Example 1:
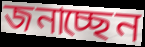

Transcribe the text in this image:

জনাচ্ছেন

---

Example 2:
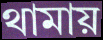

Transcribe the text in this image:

থামায়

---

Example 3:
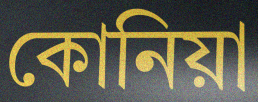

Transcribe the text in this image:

কোনিয়া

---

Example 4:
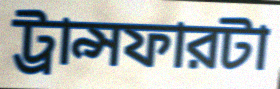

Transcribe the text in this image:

ট্রান্সফারটা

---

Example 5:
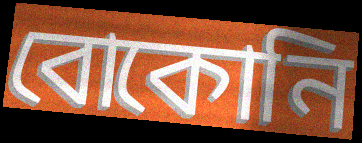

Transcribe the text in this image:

বোকোনি